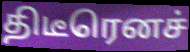
திடீரெனச்